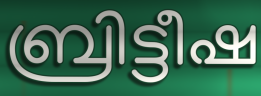
ബ്രിട്ടീഷ